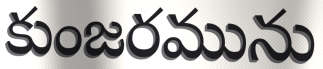
కుంజరమును